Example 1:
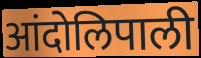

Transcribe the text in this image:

आंदोलिपाली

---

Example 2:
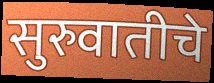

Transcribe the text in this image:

सुरुवातीचे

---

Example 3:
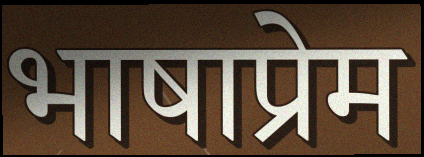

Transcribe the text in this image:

भाषाप्रेम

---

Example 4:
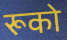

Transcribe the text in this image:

रूको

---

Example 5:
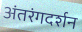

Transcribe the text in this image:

अंतरंगदर्शन